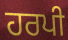
ਹਰਪੀ